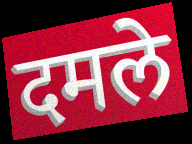
दमले